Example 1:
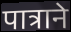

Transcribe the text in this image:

पात्राने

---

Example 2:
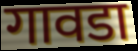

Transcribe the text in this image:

गावडा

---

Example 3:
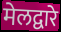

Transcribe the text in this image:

मेलद्वारे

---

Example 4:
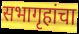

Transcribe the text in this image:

सभागृहांचा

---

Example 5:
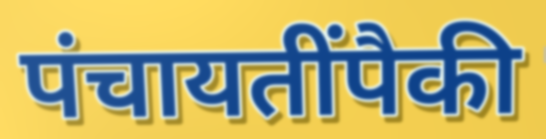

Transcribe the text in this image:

पंचायतींपैकी